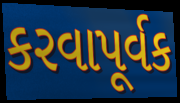
કરવાપૂર્વક